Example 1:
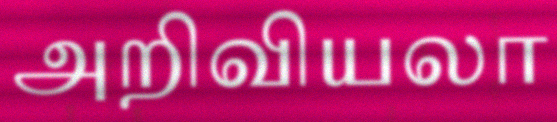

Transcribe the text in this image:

அறிவியலா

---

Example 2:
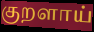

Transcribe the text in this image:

குறளாய்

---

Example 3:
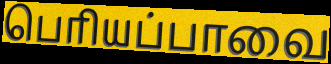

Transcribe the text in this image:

பெரியப்பாவை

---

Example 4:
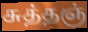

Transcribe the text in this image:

சுத்தஞ்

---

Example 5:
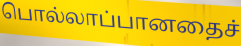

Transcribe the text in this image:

பொல்லாப்பானதைச்